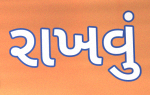
રાખવું